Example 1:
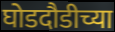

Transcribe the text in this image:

घोडदौडीच्या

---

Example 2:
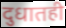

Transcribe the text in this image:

दुधातही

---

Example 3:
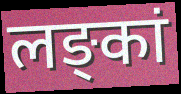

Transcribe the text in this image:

लङ्कां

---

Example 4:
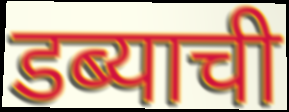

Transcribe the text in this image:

डब्याची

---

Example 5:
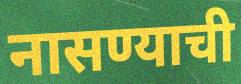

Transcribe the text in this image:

नासण्याची